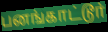
பனங்காட்டூர்